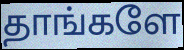
தாங்களே